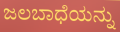
ಜಲಬಾಧೆಯನ್ನು